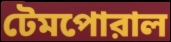
টেমপোরাল